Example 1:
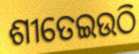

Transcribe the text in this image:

ଶୀତେଇଉଠି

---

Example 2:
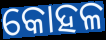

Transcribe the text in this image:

କୋହଳ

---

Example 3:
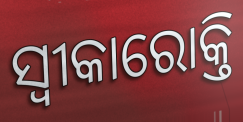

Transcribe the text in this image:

ସ୍ୱୀକାରୋକ୍ତି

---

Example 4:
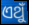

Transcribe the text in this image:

ଏଥୁଁ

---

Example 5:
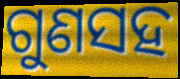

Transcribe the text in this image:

ଗୁଣସହ